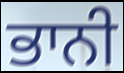
ਭਾਨੀ